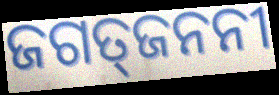
ଜଗତ୍‍ଜନନୀ